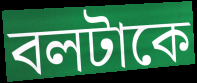
বলটাকে